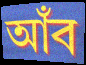
আঁব